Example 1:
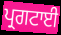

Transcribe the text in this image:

ਪ੍ਰਗਟਾਈ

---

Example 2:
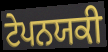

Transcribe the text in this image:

ਟੇਪਨਯਕੀ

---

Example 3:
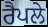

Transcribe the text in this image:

ਰੈਪਲੇ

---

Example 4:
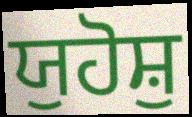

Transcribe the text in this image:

ਯੁਹੋਸ਼ੁ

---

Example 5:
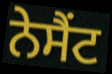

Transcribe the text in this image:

ਨੇਸੈਂਟ